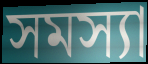
সমস্যা